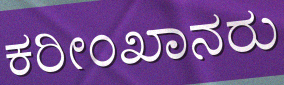
ಕರೀಂಖಾನರು